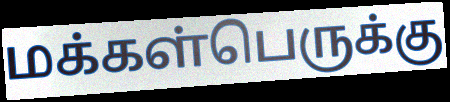
மக்கள்பெருக்கு